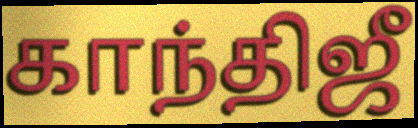
காந்திஜீ